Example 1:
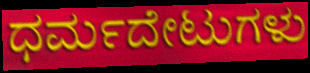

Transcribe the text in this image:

ಧರ್ಮದೇಟುಗಳು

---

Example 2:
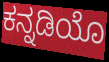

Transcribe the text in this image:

ಕನ್ನಡಿಯೊ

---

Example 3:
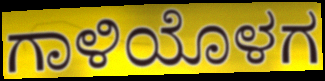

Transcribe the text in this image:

ಗಾಳಿಯೊಳಗ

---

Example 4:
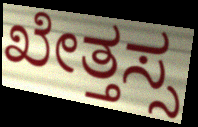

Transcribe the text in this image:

ಖೇತ್ತಸ್ಸ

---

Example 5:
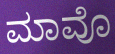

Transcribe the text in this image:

ಮಾವೊ